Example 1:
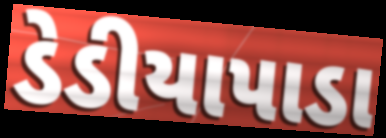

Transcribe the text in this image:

ડેડીયાપાડા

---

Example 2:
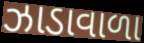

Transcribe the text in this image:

ઝાડાવાળા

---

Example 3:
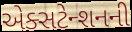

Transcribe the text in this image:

એક્સટેન્શનની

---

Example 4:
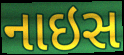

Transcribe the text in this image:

નાઇસ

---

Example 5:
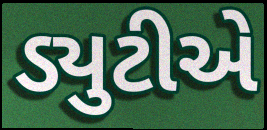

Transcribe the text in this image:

ડ્યુટીએ